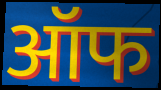
ऑफ